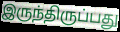
இருந்திருப்பது